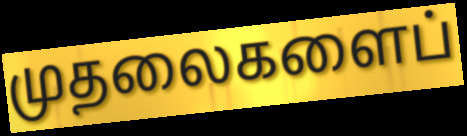
முதலைகளைப்